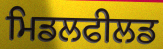
ਮਿਡਲਫੀਲਡ